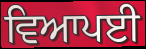
ਵਿਆਪਈ